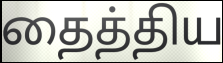
தைத்திய